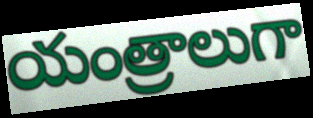
యంత్రాలుగా